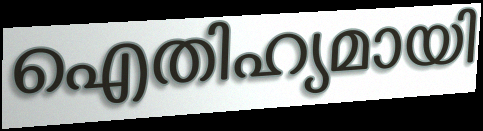
ഐതിഹ്യമായി